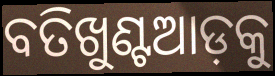
ବତିଖୁଣ୍ଟଆଡ଼କୁ